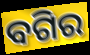
ବଗିର